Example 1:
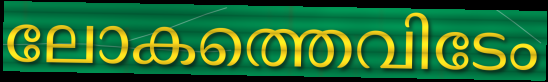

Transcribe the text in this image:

ലോകത്തെവിടേം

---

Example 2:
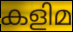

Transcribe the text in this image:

കളിമ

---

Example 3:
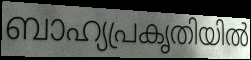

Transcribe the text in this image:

ബാഹ്യപ്രകൃതിയിൽ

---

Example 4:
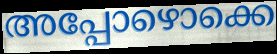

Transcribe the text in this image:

അപ്പോഴൊക്കെ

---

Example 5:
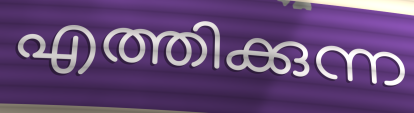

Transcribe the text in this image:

എത്തിക്കുന്ന